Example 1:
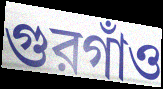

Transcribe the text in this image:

গুরগাঁও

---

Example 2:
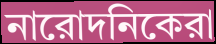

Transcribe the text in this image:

নারোদনিকেরা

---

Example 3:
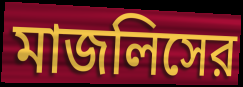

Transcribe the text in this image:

মাজলিসের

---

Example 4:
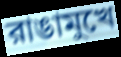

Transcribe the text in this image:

রাঙামুখে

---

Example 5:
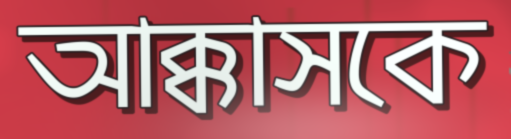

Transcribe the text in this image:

আক্কাসকে